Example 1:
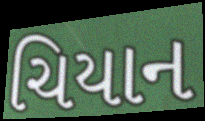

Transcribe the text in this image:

ચિયાન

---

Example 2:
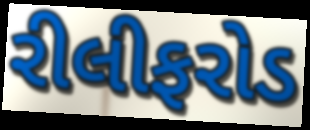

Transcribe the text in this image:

રીલીફરોડ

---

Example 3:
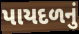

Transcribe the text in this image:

પાયદળનું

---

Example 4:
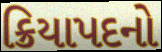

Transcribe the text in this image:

ક્રિયાપદનો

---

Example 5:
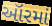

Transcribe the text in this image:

ઑરમાં